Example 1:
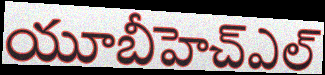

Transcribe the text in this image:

యూబీహెచ్ఎల్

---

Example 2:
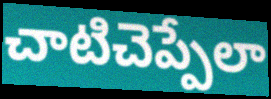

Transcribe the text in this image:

చాటిచెప్పేలా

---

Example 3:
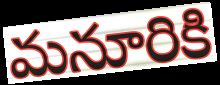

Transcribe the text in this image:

మనూరికి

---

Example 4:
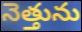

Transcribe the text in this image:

నెత్తును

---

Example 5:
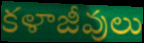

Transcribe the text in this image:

కళాజీవులు